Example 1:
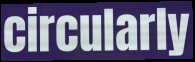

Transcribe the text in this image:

circularly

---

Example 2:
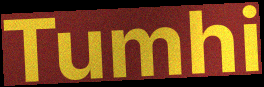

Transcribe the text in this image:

Tumhi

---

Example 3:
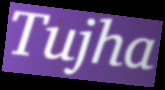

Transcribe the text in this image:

Tujha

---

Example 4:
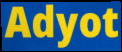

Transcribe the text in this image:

Adyot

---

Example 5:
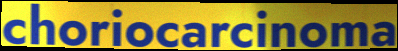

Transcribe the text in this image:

choriocarcinoma